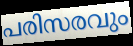
പരിസരവും